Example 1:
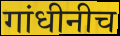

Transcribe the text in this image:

गांधीनीच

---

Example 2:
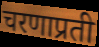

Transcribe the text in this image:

चरणाप्रती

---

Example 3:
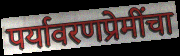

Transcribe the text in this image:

पर्यावरणप्रेमींचा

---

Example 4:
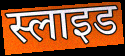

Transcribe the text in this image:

स्लाइड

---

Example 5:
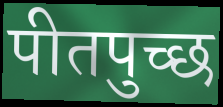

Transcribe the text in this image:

पीतपुच्छ